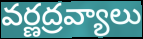
వర్ణద్రవ్యాలు